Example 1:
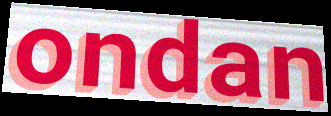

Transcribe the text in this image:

ondan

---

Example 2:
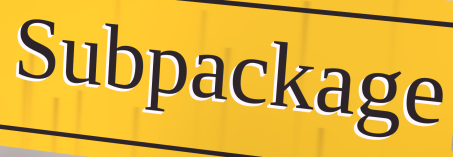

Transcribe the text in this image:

Subpackage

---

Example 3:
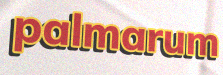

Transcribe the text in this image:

palmarum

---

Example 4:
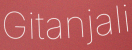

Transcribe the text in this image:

Gitanjali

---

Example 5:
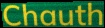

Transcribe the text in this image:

Chauth